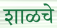
शाळचे